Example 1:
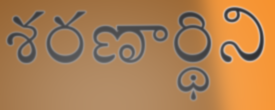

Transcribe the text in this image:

శరణార్థిని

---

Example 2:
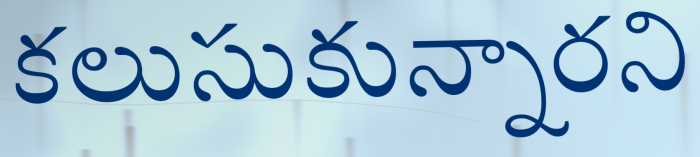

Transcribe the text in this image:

కలుసుకున్నారని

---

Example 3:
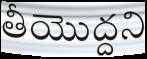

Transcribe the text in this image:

తీయొద్దని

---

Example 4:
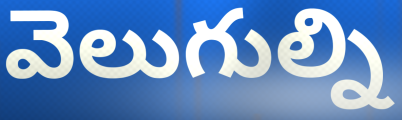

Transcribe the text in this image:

వెలుగుల్ని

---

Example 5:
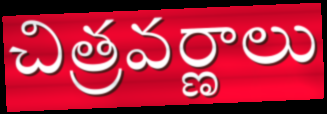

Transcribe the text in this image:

చిత్రవర్ణాలు